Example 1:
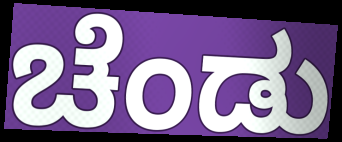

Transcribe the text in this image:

ಚೆಂಡು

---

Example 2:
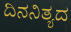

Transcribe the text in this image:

ದಿನನಿತ್ಯದ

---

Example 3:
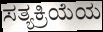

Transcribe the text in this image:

ಸತ್ಯಕ್ರಿಯೆಯ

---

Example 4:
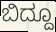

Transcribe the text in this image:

ಬಿದ್ದೂ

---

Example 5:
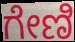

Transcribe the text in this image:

ಗೇಣಿ